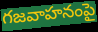
గజవాహనంపై